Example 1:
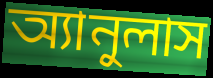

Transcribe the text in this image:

অ্যানুলাস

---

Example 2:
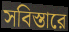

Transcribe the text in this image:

সবিস্তারে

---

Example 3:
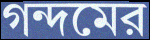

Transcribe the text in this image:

গন্দমের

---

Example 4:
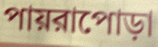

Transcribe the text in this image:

পায়রাপোড়া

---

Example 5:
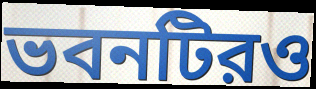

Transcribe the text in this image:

ভবনটিরও